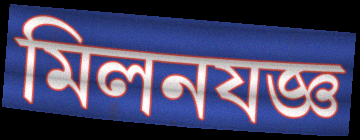
মিলনযজ্ঞ